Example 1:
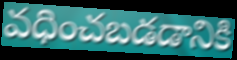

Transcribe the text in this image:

వధించబడడానికి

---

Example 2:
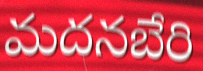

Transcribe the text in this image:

మదనబేరి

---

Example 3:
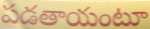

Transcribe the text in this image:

పడతాయంటూ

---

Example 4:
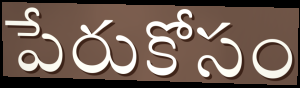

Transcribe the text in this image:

పేరుకోసం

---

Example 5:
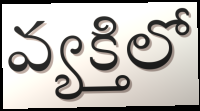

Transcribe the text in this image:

వ్యక్తిలో